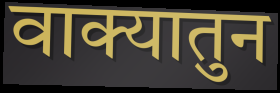
वाक्यातुन